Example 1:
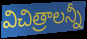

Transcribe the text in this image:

విచిత్రాలన్నీ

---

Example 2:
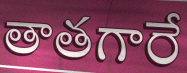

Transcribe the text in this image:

తాతగారే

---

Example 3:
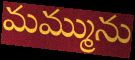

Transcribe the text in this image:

మమ్మును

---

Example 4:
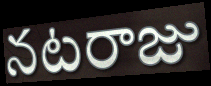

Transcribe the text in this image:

నటరాజు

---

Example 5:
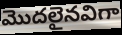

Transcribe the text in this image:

మొదలైనవిగా